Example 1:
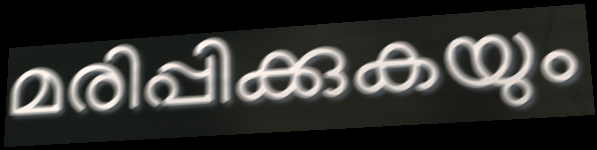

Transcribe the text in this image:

മരിപ്പിക്കുകയും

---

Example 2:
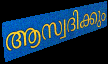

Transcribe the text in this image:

ആസ്വദിക്കും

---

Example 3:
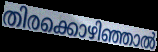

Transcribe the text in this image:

തിരക്കൊഴിഞ്ഞാൽ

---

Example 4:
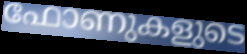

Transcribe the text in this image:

ഫോണുകളുടെ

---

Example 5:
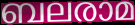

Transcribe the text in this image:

ബലരാമ